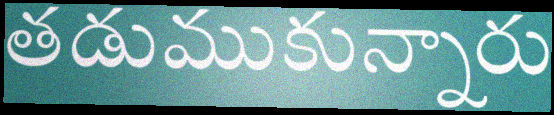
తడుముకున్నారు